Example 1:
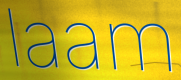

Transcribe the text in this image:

laam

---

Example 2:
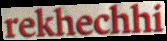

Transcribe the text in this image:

rekhechhi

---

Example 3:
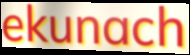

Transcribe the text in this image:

ekunach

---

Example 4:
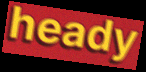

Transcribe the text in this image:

heady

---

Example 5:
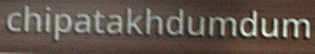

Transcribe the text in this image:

chipatakhdumdum